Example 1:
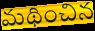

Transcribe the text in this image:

మథించిన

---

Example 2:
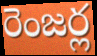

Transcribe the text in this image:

రెంజర్ల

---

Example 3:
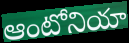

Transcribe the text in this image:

ఆంటోనియా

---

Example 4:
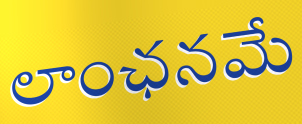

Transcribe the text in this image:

లాంఛనమే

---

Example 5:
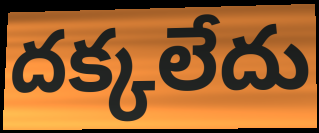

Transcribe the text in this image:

దక్కలేదు